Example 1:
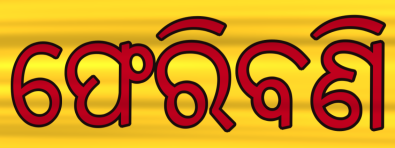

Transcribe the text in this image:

ଫେରିବଣି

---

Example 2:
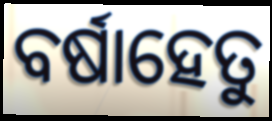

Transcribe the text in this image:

ବର୍ଷାହେତୁ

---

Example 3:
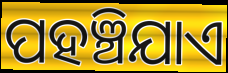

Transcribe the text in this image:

ପହଞ୍ଚିଯାଏ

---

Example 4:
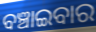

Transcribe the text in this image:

ବଞ୍ଚାଇବାର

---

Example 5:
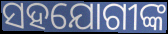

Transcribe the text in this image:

ସହଯୋଗୀଙ୍କ